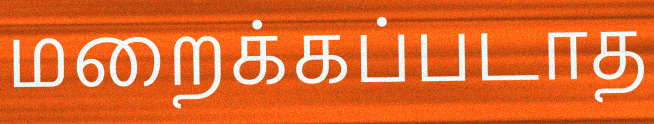
மறைக்கப்படாத